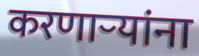
करणाऱ्यांना